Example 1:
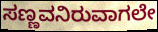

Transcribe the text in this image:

ಸಣ್ಣವನಿರುವಾಗಲೇ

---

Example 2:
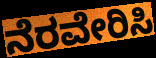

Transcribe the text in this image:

ನೆರವೇರಿಸಿ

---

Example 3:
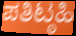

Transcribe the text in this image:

ಪತಿಟ್ಠಹಿ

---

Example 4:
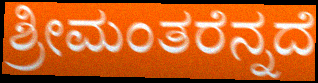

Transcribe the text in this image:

ಶ್ರೀಮಂತರೆನ್ನದೆ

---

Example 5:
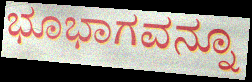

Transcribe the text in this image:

ಭೂಭಾಗವನ್ನೂ